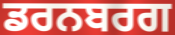
ਡਰਨਬਰਗ